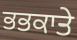
ਭਭਕਾਤੇ